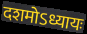
दशमोऽध्यायः